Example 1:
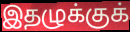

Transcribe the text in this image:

இதழுக்குக்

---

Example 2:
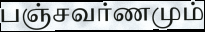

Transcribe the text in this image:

பஞ்சவர்ணமும்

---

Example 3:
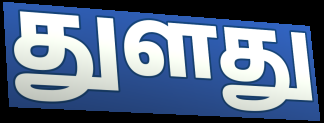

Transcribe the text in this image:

துளது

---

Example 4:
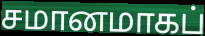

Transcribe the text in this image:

சமானமாகப்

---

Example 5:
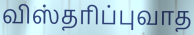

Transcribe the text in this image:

விஸ்தரிப்புவாத